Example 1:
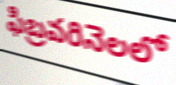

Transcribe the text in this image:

ఫిబ్రవరినెలలో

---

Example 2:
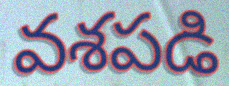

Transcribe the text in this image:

వశపడి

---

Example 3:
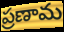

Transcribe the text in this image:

ప్రణామ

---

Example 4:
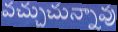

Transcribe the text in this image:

వచ్చుచున్నావు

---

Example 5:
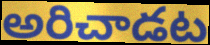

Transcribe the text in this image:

అరిచాడట